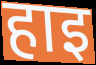
हाइ